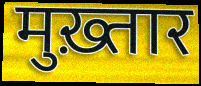
मुख़्तार